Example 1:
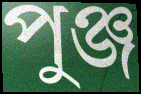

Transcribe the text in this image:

পুঞ্জ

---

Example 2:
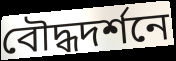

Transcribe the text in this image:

বৌদ্ধদর্শনে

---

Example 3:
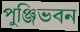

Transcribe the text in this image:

পুঞ্জিভবন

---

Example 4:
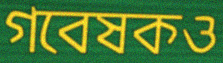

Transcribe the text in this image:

গবেষকও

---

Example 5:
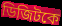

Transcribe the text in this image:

ডিজিটকে